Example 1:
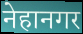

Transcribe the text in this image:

नेहानगर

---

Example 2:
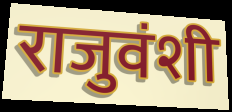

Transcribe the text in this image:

राजुवंशी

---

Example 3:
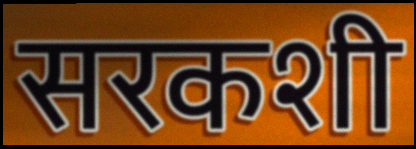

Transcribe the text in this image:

सरकशी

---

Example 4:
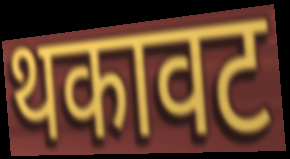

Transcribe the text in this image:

थकावट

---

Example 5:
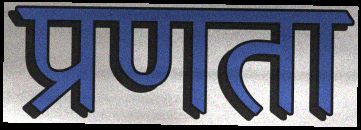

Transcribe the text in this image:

प्रणता